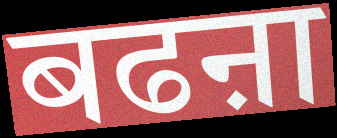
बढऩा